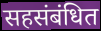
सहसंबंधित